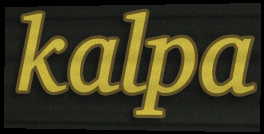
kalpa